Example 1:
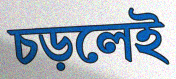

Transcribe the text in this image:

চড়লেই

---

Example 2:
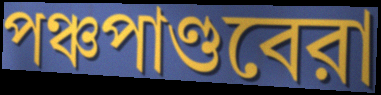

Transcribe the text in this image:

পঞ্চপাণ্ডবেরা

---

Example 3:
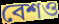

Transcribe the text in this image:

বেশও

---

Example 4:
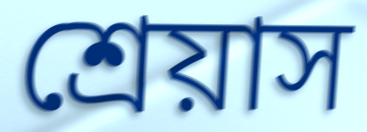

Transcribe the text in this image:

শ্রেয়াস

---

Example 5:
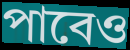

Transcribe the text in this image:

পাবেও